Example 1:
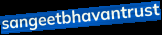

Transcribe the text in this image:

sangeetbhavantrust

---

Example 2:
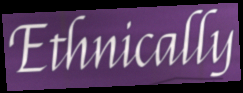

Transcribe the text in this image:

Ethnically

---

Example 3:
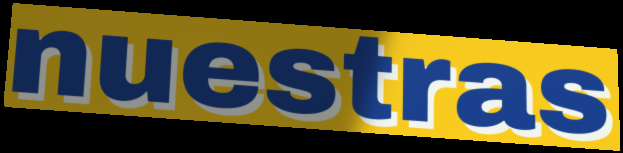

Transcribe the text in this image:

nuestras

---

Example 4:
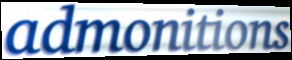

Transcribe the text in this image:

admonitions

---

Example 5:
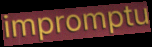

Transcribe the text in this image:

impromptu